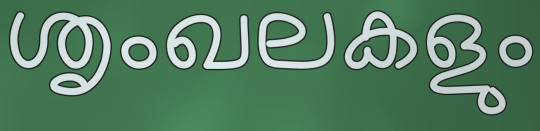
ശൃംഖലകളും